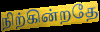
நிற்கின்றதே